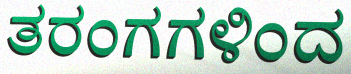
ತರಂಗಗಳಿಂದ